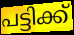
പട്ടിക്ക്